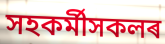
সহকৰ্মীসকলৰ